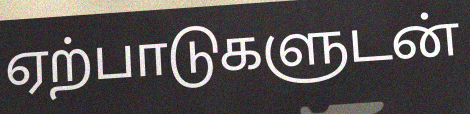
ஏற்பாடுகளுடன்